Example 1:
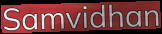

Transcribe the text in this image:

Samvidhan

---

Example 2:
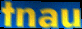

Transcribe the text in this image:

tnau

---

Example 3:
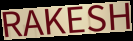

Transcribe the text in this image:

RAKESH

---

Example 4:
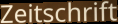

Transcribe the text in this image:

Zeitschrift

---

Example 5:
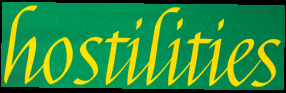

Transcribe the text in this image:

hostilities